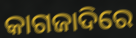
କାଗଜାଦିରେ